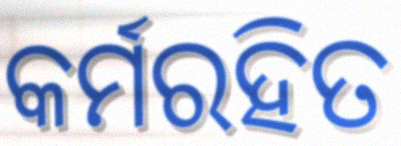
କର୍ମରହିତ